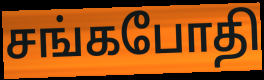
சங்கபோதி